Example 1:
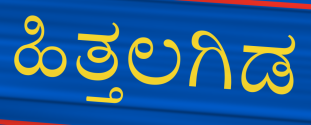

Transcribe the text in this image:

ಹಿತ್ತಲಗಿಡ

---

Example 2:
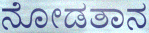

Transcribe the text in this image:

ನೋಡತಾನ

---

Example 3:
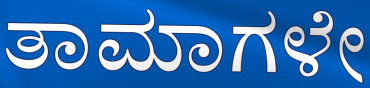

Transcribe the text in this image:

ತಾಮಾಗಳೇ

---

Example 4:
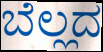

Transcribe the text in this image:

ಬೆಲ್ಲದ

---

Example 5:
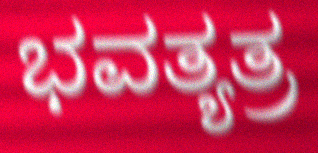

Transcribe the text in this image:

ಭವತ್ಯತ್ರ